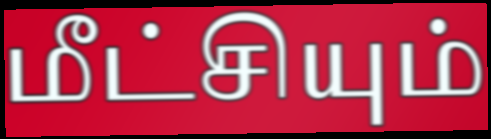
மீட்சியும்